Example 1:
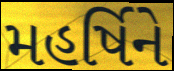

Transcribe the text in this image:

મહર્ષિને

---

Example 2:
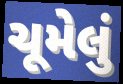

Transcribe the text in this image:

ચૂમેલું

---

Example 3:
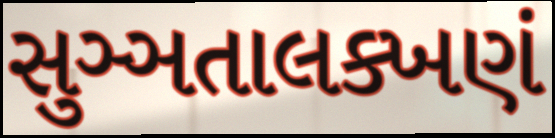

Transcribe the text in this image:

સુઞ્ઞતાલક્ખણં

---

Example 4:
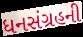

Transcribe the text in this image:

ધનસંગ્રહની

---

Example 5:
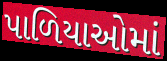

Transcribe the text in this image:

પાળિયાઓમાં